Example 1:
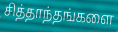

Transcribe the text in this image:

சித்தாந்தங்களை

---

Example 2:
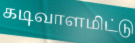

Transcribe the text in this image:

கடிவாளமிட்டு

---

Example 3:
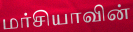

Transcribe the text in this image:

மர்சியாவின்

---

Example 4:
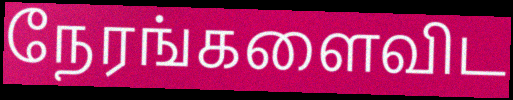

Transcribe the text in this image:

நேரங்களைவிட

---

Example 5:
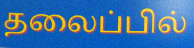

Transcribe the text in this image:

தலைப்பில்